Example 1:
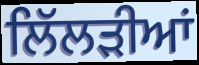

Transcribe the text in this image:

ਲਿੱਲੜੀਆਂ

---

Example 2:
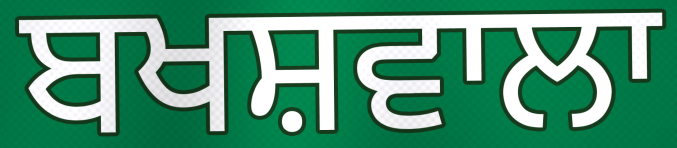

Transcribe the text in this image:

ਬਖਸ਼ਵਾਲਾ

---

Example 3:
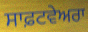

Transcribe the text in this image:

ਸਾਫ਼ਟਵੇਅਰਾ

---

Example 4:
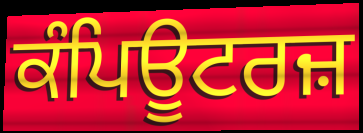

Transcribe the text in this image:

ਕੰਪਿਊਟਰਜ਼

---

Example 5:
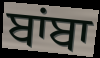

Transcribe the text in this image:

ਬਾਂਬਾ